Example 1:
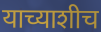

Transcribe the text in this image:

याच्याशीच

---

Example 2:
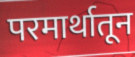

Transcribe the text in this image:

परमार्थातून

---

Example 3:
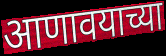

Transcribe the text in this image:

आणावयाच्या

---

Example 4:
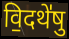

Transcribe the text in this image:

वि॒दथे॑षु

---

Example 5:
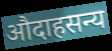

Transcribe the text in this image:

औदाहसन्य